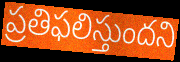
ప్రతిఫలిస్తుందని